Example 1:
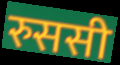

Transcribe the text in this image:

रुससी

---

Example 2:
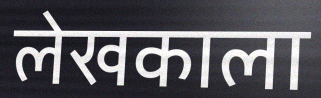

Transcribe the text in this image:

लेखकाला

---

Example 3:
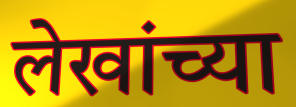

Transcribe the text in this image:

लेखांच्या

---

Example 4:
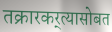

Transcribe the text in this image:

तक्रारकर्त्यासोबत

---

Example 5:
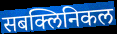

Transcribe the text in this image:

सबक्लिनिकल